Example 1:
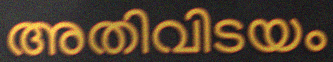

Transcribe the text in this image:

അതിവിടയം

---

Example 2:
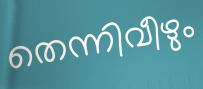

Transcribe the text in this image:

തെന്നിവീഴും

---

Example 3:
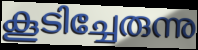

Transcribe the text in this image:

കൂടിച്ചേരുന്നു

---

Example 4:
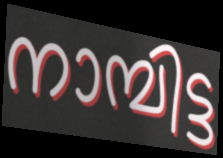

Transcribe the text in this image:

നാമ്പിട്ട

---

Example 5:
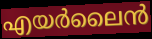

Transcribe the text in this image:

എയർലൈൻ